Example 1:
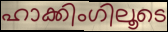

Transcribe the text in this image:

ഹാക്കിംഗിലൂടെ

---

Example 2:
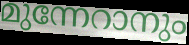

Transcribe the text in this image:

മുന്നേറാനും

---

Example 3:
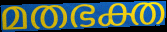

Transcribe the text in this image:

മതഭക്ത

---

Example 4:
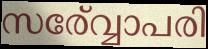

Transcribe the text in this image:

സര്വ്വോപരി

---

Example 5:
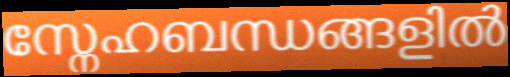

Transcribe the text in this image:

സ്നേഹബന്ധങ്ങളിൽ